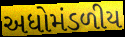
અધોમંડળીય